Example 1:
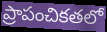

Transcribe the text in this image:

ప్రాపంచికతలో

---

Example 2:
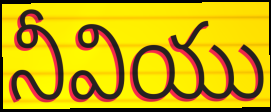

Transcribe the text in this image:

నీవియు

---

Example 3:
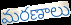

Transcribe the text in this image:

మరణాలు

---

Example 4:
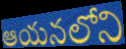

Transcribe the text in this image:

ఆయనలోని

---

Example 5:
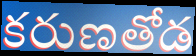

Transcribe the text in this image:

కరుణతోడ